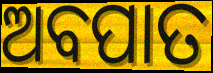
ଅବପାତ